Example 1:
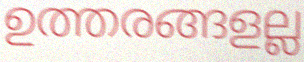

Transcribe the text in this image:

ഉത്തരങ്ങളല്ല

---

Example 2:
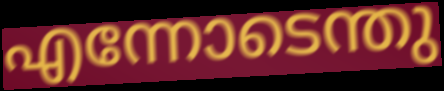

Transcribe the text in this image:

എന്നോടെന്തു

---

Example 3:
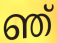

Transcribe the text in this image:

ഞ്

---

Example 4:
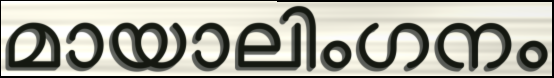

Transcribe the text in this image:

മായാലിംഗനം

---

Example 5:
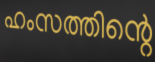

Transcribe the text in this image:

ഹംസത്തിന്റെ